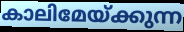
കാലിമേയ്ക്കുന്ന